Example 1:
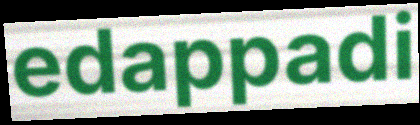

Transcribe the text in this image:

edappadi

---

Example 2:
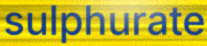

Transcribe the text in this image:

sulphurate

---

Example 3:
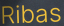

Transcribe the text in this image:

Ribas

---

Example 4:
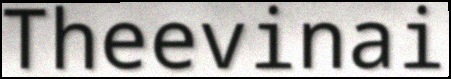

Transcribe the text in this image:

Theevinai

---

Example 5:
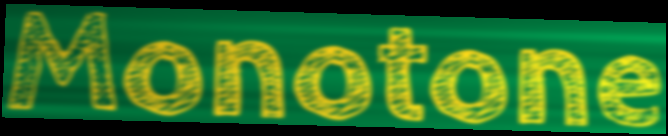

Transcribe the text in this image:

Monotone